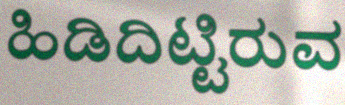
ಹಿಡಿದಿಟ್ಟಿರುವ